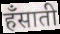
हँसाती